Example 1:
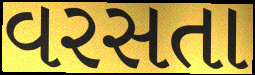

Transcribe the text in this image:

વરસતા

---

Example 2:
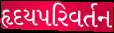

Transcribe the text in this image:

હૃદયપરિવર્તન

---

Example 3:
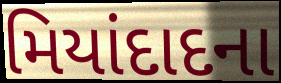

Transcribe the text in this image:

મિયાંદાદના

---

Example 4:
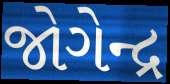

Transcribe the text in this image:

જોગેન્દ્ર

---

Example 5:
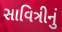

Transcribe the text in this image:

સાવિત્રીનું